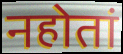
नहोतां